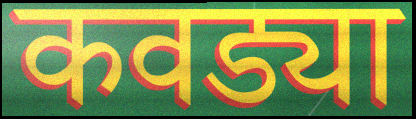
कवड्या